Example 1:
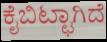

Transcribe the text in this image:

ಕೈಬಿಟ್ಟಾಗಿದೆ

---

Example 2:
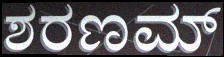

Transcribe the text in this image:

ಶರಣಮ್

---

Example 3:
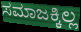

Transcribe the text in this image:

ಸಮಾಜಕ್ಕಿಲ್ಲ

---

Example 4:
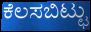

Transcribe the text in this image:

ಕೆಲಸಬಿಟ್ಟು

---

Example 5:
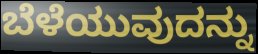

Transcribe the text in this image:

ಬೆಳೆಯುವುದನ್ನು